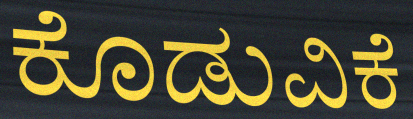
ಕೊಡುವಿಕೆ